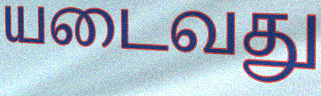
யடைவது